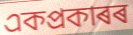
একপ্ৰকাৰৰ